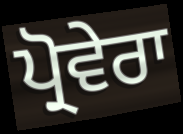
ਪ੍ਰੋਵੇਰਾ